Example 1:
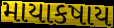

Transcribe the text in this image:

માયાકષાય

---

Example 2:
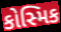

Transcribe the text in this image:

કોસ્મિક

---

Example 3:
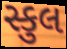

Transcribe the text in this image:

સ્કુલ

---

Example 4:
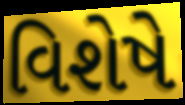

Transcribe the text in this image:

વિશેષે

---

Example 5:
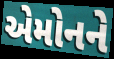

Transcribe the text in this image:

એમોનને